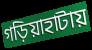
গড়িয়াহাটায়